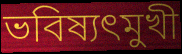
ভবিষ্যৎমুখী